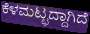
ಕೆಳಮಟ್ಟದ್ದಾಗಿದೆ